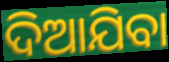
ଦିଆଯିବା